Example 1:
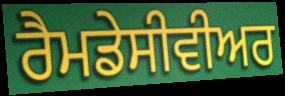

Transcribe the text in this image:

ਰੈਮਡੇਸੀਵੀਅਰ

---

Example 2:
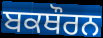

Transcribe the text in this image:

ਬਕਥੌਰਨ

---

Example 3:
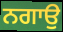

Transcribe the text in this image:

ਨਗਾਉ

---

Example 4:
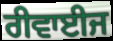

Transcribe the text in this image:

ਰੀਵਾਈਜ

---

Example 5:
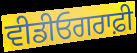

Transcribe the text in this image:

ਵੀਡੀਓਗਰਾਫ਼ੀ